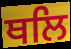
ਥਲਿ